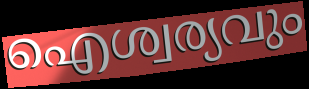
ഐശ്വര്യവും